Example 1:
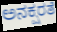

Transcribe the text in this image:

ಅನಕ್ಷರತೆ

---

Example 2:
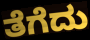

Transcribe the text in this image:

ತೆಗೆದು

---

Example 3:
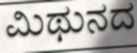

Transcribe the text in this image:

ಮಿಥುನದ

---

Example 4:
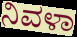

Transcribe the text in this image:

ನಿವಳಾ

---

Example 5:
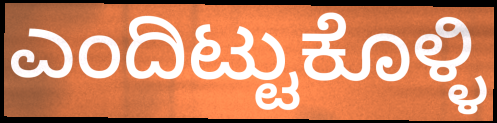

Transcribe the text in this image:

ಎಂದಿಟ್ಟುಕೊಳ್ಳಿ